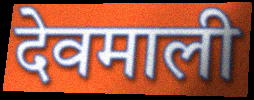
देवमाली